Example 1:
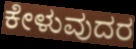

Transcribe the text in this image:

ಕೇಳುವುದರ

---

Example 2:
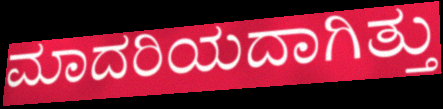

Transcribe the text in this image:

ಮಾದರಿಯದಾಗಿತ್ತು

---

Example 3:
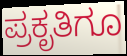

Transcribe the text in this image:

ಪ್ರಕೃತಿಗೂ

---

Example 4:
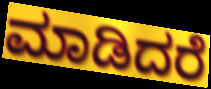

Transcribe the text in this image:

ಮಾಡಿದರೆ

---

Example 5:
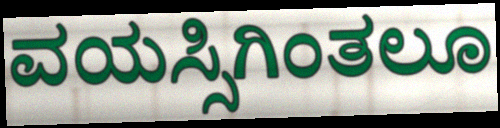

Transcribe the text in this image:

ವಯಸ್ಸಿಗಿಂತಲೂ